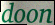
doon